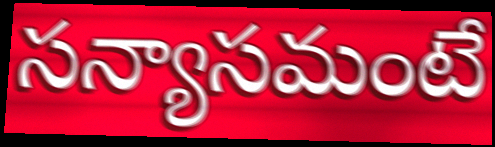
సన్యాసమంటే